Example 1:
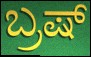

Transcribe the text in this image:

ಬ್ರಷ್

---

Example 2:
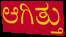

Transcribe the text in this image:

ಆಗಿತ್ತು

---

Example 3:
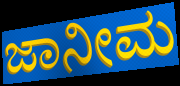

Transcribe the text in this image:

ಜಾನೀಮ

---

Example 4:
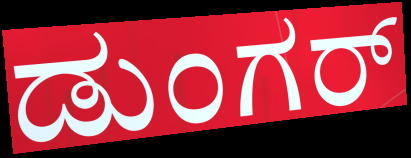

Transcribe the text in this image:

ಡುಂಗರ್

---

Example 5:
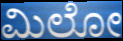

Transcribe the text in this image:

ಮಿಲೋ